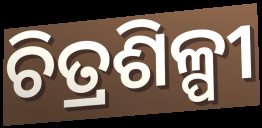
ଚିତ୍ରଶିଳ୍ପୀ